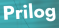
Prilog